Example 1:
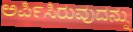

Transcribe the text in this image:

ಅರ್ಪಿಸಿರುವುದನ್ನು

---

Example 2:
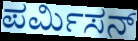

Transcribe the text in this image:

ಪರ್ಮಿಸನ್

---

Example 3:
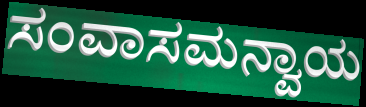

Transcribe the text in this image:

ಸಂವಾಸಮನ್ವಾಯ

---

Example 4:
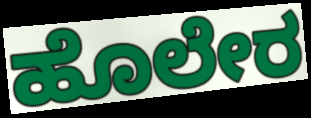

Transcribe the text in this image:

ಹೊಲೇರ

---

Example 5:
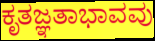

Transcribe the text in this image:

ಕೃತಜ್ಞತಾಭಾವವು